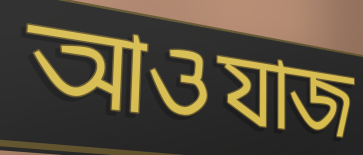
আওযাজ